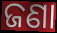
ଜଣା